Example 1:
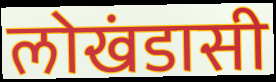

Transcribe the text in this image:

लोखंडासी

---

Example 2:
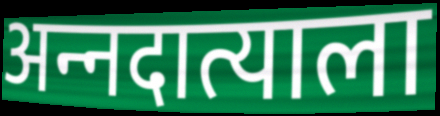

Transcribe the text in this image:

अन्नदात्याला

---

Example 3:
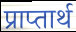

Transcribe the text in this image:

प्राप्तार्थ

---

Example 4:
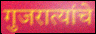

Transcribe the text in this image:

गुजरात्यांचे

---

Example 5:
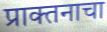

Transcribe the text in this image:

प्राक्तनाचा